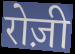
रोज़ी